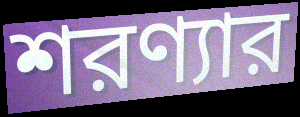
শরণ্যার